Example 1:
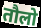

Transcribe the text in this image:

तौलो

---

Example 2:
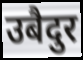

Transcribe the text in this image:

उबैदुर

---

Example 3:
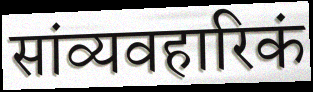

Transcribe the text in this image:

सांव्यवहारिकं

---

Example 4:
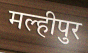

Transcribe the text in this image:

मल्हीपुर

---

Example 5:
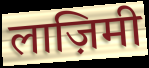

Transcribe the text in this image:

लाज़िमी